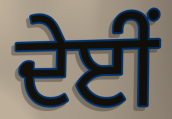
ਦੇਈਂ